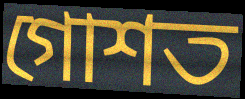
গোশত